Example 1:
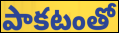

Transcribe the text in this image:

పాకటంతో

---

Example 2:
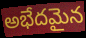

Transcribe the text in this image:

అభేదమైన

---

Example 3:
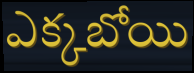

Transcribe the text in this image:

ఎక్కబోయి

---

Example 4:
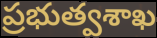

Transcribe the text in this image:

ప్రభుత్వశాఖ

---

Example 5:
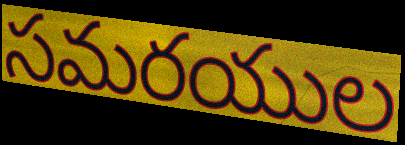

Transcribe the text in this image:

సమరయుల